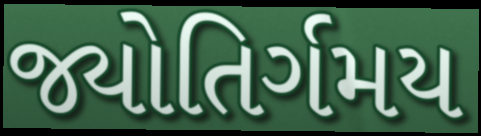
જ્યોતિર્ગમય